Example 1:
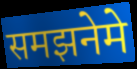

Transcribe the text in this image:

समझनेमे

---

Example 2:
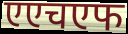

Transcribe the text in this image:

एएचएफ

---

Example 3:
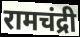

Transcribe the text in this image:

रामचंद्री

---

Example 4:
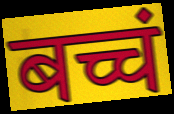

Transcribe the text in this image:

बच्चं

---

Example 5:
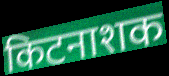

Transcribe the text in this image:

किटनाशक